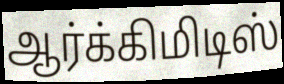
ஆர்க்கிமிடிஸ்